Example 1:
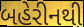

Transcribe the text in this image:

બહેરીનથી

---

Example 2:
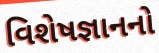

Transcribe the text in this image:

વિશેષજ્ઞાનનો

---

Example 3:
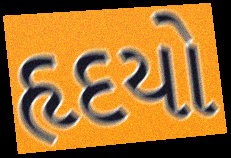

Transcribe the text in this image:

હૃદયો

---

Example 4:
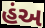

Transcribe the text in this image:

હંઅ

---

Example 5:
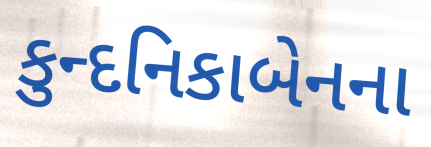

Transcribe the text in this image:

કુન્દનિકાબેનના